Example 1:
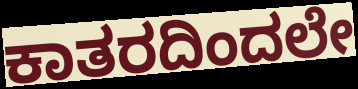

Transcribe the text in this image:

ಕಾತರದಿಂದಲೇ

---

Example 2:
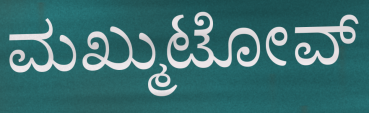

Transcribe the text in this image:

ಮಖ್ಮುಟೋವ್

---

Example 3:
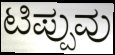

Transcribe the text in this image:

ಟಿಪ್ಪುವು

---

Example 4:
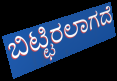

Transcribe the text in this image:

ಬಿಟ್ಟಿರಲಾಗದೆ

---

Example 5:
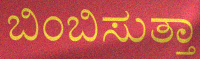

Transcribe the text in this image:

ಬಿಂಬಿಸುತ್ತಾ